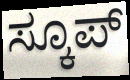
ಸ್ಕೂಪ್